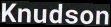
Knudson